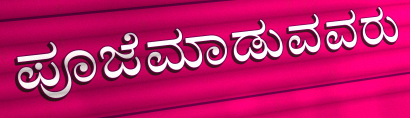
ಪೂಜೆಮಾಡುವವರು